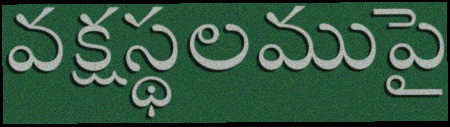
వక్షస్థలముపై